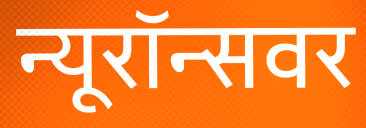
न्यूरॉन्सवर